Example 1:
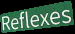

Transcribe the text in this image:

Reflexes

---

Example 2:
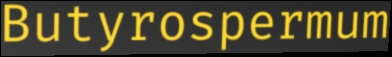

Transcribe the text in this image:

Butyrospermum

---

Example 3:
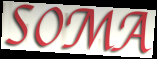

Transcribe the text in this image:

SOMA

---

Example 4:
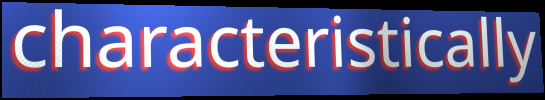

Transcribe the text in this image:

characteristically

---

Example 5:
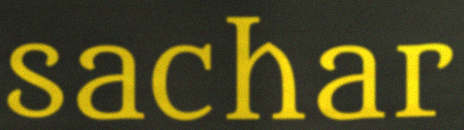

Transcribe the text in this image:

sachar